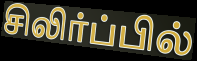
சிலிர்ப்பில்